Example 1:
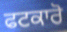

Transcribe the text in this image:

ਫਟਕਾਰੋ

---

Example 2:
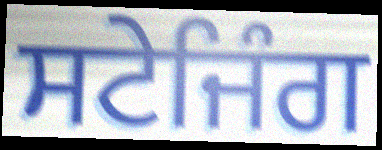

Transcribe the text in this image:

ਸਟੇਜਿੰਗ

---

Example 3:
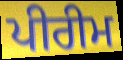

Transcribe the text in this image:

ਪੀਰੀਮ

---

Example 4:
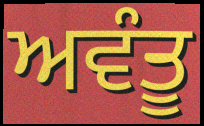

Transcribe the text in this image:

ਅਵੰਤੂ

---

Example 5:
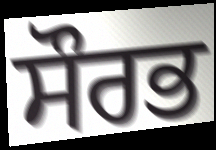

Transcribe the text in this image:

ਸੌਰਭ